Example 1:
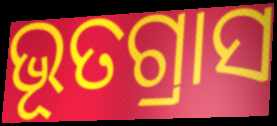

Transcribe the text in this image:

ଭୂତଗ୍ରାସ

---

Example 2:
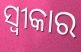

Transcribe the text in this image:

ସ୍ବୀକାର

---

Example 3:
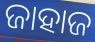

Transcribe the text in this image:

ଜାହାଜ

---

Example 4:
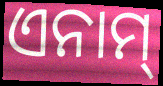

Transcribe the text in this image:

ଏନାମ୍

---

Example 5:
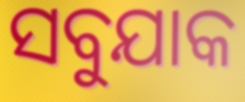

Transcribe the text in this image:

ସବୁଯାକ